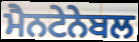
ਮੈਨਟੇਨੇਬਲ